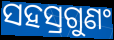
ସହସ୍ରଗୁଣଂ